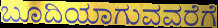
ಬೂದಿಯಾಗುವವರೆಗೆ